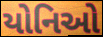
યોનિઓ